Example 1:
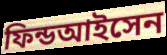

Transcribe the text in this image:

ফিন্ডআইসেন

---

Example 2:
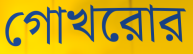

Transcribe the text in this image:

গোখরোর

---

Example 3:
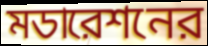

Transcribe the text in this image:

মডারেশনের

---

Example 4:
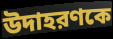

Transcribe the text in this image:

উদাহরণকে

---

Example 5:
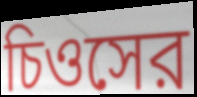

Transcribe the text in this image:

চিওসের